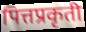
पित्तप्रकृती